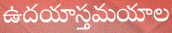
ఉదయాస్తమయాల